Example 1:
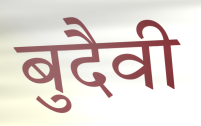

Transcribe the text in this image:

बुदैवी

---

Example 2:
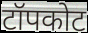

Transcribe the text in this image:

टॉपकोट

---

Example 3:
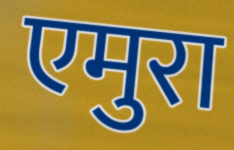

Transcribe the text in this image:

एमुरा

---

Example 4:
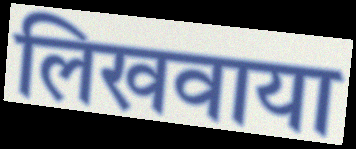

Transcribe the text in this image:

लिखवाया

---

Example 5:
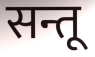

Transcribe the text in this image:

सन्तू